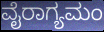
ವೈರಾಗ್ಯಮಂ